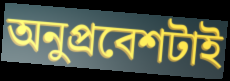
অনুপ্রবেশটাই